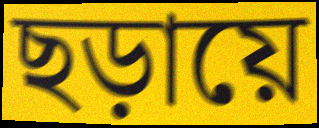
ছড়ায়ে